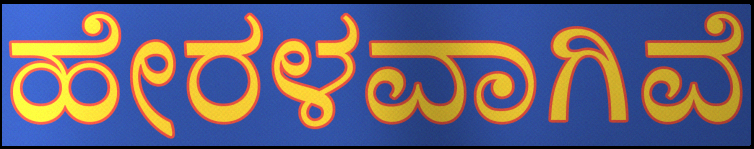
ಹೇರಳವಾಗಿವೆ